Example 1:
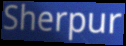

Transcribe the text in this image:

Sherpur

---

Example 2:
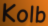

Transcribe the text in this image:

Kolb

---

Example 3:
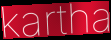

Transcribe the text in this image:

kartha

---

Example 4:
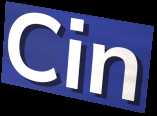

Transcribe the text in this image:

Cin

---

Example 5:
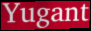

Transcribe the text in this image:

Yugant